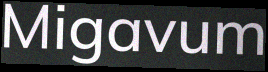
Migavum